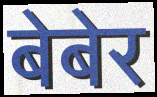
बेबेर